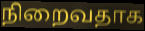
நிறைவதாக